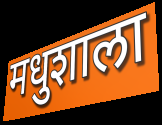
मधुशाला